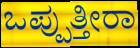
ಒಪ್ಪುತ್ತೀರಾ